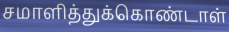
சமாளித்துக்கொண்டாள்